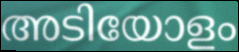
അടിയോളം